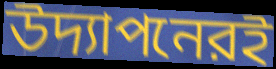
উদ্যাপনেরই